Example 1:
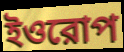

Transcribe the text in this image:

ইওরোপ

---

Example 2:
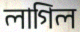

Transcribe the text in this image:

লাগিল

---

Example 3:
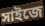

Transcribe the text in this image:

সাইজে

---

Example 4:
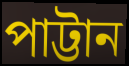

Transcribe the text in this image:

পাট্টান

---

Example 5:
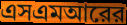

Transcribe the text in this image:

এসএমআরের